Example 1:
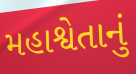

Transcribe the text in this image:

મહાશ્વેતાનું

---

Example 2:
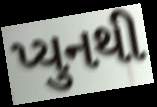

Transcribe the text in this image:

પ્યુનથી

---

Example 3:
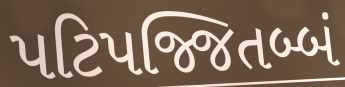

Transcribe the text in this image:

પટિપજ્જિતબ્બં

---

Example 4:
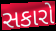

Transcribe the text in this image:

સકારો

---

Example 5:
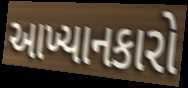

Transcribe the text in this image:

આખ્યાનકારો